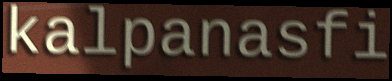
kalpanasfi